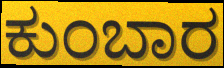
ಕುಂಬಾರ